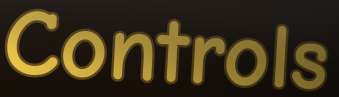
Controls